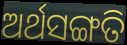
ଅର୍ଥସଙ୍ଗତି